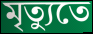
মৃত্যুতে